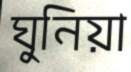
ঘুনিয়া